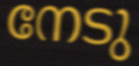
നേടു